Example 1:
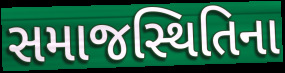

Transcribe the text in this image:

સમાજસ્થિતિના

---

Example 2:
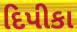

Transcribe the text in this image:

દિપીકા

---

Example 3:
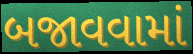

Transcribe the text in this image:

બજાવવામાં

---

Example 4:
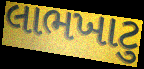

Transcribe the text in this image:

લાભખાટુ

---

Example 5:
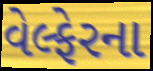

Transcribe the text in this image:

વેલ્ફેરના